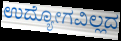
ಉದ್ಯೋಗವಿಲ್ಲದ